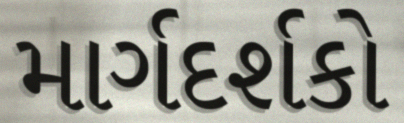
માર્ગદર્શકો